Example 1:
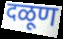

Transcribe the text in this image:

दळूण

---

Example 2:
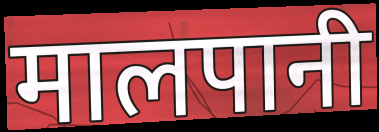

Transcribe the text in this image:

मालपानी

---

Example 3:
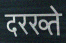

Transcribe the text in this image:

दरख्ते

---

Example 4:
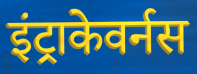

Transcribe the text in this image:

इंट्राकेवर्नस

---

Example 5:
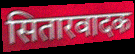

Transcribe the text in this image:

सितारवादक